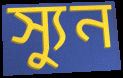
স্যুন